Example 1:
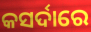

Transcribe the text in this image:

କସର୍ଦାରେ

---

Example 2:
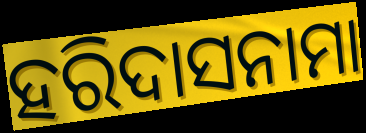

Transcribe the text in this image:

ହରିଦାସନାମା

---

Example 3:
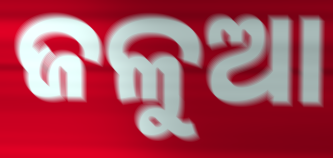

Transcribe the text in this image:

ଜଳୁଆ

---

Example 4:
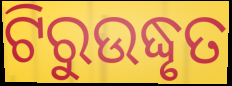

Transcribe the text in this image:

ଟିରୁଉଦ୍ଧୃତ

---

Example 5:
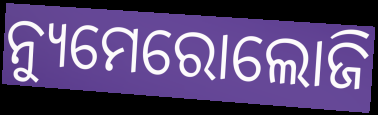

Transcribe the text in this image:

ନ୍ୟୁମେରୋଲୋଜି